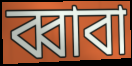
ব্বাবা